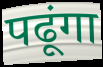
पढूंगा